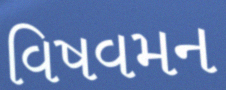
વિષવમન